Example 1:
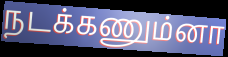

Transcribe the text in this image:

நடக்கணும்னா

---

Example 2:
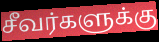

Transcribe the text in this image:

சீவர்களுக்கு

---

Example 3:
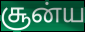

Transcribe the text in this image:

சூன்ய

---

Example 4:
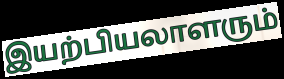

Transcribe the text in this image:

இயற்பியலாளரும்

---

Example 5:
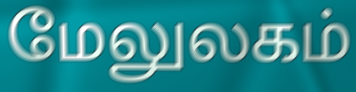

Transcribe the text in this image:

மேலுலகம்